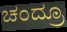
ಚಂದ್ರೂ